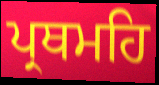
ਪ੍ਰਥਮਹਿ